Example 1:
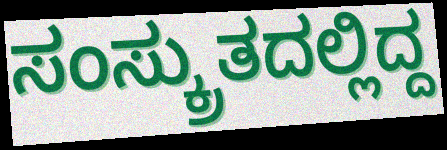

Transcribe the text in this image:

ಸಂಸ್ಕ್ರುತದಲ್ಲಿದ್ದ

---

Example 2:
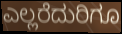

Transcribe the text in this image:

ಎಲ್ಲರೆದುರಿಗೂ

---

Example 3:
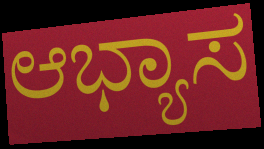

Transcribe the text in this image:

ಆಭ್ಯಾಸ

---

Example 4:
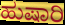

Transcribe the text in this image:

ಹುಷಾರಿ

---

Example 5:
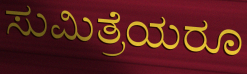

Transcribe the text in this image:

ಸುಮಿತ್ರೆಯರೂ